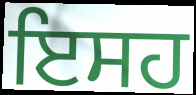
ਇਸਹ